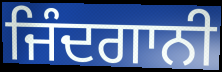
ਜਿੰਦਗਾਨੀ